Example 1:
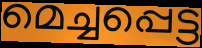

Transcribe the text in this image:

മെച്ചപ്പെട്ട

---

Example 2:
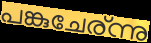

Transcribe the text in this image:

പങ്കുചേര്ന്നു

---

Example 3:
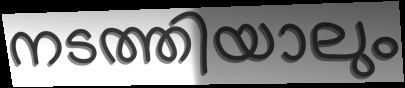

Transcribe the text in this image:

നടത്തിയാലും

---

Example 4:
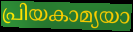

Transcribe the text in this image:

പ്രിയകാമ്യയാ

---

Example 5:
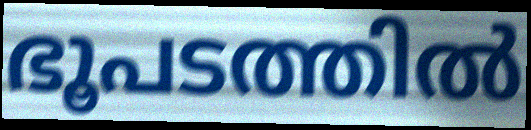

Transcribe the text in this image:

ഭൂപടത്തിൽ